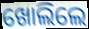
ଖୋଲିଲେ